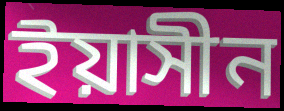
ইয়াসীন